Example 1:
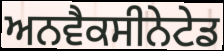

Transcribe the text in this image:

ਅਨਵੈਕਸੀਨੇਟੇਡ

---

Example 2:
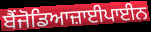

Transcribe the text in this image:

ਬੈਂਜੋਡਿਆਜ਼ਾਈਪਾਈਨ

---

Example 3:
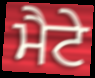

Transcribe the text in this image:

ਮੈਟੇ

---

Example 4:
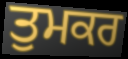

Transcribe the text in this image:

ਤੁਮਕਰ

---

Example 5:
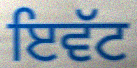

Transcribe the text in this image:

ਇਵੱਟ